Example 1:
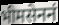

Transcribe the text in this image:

भीमसेननं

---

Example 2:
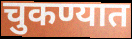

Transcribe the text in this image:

चुकण्यात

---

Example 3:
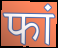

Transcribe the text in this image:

फां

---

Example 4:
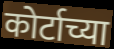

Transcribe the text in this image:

कोर्टाच्या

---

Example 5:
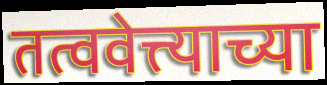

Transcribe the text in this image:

तत्ववेत्त्याच्या